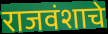
राजवंशाचे